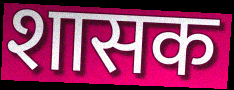
शासक